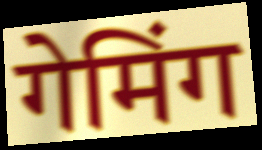
गेमिंग